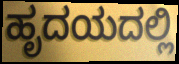
ಹೃದಯದಲ್ಲಿ